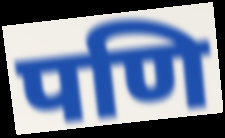
पणि